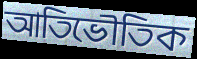
আতিভৌতিক